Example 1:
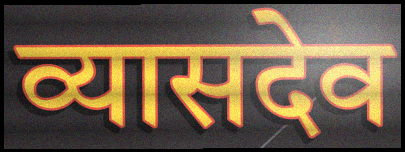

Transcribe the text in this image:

व्यासदेव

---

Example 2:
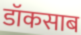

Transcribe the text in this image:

डॉकसाब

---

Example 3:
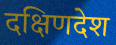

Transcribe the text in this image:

दक्षिणदेश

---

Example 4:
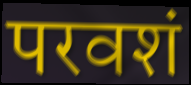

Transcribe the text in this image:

परवशं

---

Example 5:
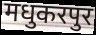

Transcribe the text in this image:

मधुकरपुर